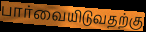
பார்வையிடுவதற்கு